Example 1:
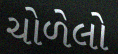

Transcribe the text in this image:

ચોળેલો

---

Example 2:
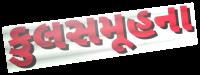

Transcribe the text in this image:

કુલસમૂહના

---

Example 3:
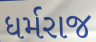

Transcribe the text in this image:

ધર્મરાજ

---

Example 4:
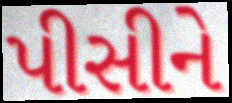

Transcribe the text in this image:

પીસીને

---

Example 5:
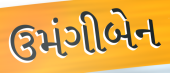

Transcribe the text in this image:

ઉમંગીબેન